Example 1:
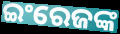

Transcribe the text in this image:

ଇଂରେଜଙ୍କ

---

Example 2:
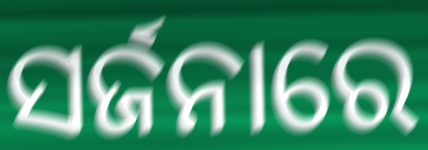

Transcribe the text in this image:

ସର୍ଜନାରେ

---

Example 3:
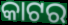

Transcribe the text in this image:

କାଟର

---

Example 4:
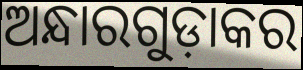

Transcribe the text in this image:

ଅନ୍ଧାରଗୁଡ଼ାକର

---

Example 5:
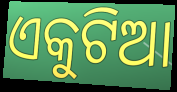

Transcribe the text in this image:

ଏକୁଟିଆ